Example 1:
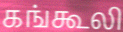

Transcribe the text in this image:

கங்கூலி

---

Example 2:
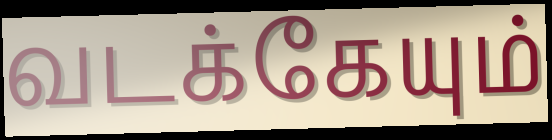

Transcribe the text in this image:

வடக்கேயும்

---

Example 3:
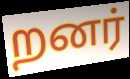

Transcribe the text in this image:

றனர்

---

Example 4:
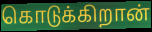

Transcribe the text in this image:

கொடுக்கிறான்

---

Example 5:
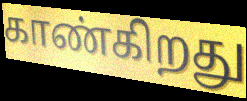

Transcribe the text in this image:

காண்கிறது